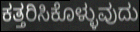
ಕತ್ತರಿಸಿಕೊಳ್ಳುವುದು